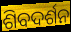
ଶିବଦର୍ଶନ